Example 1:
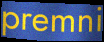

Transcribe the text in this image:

premni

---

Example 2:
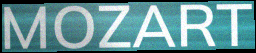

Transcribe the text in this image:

MOZART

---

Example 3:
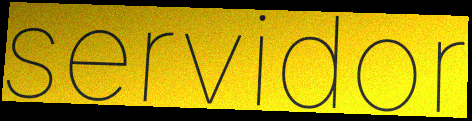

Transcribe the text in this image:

servidor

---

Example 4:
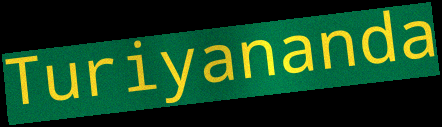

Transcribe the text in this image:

Turiyananda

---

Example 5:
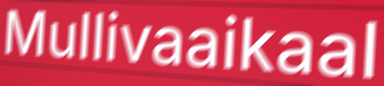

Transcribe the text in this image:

Mullivaaikaal